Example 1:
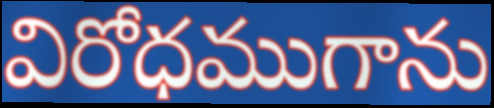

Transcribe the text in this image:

విరోధముగాను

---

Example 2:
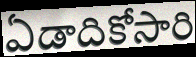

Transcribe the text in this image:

ఏడాదికోసారి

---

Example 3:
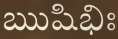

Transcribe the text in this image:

ఋషిభిః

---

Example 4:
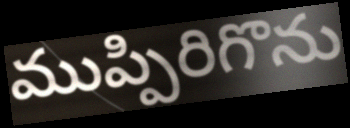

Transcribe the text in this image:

ముప్పిరిగొను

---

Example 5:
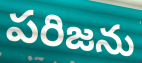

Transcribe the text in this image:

పరిజను